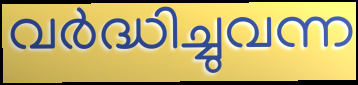
വർദ്ധിച്ചുവന്ന